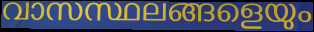
വാസസ്ഥലങ്ങളെയും